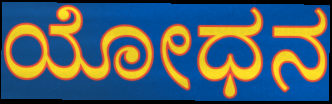
ಯೋಧನ